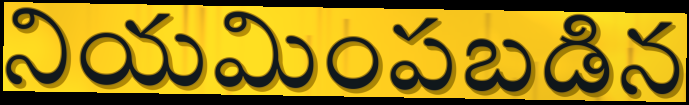
నియమింపబడిన